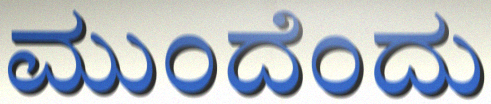
ಮುಂದೆಂದು